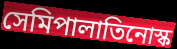
সেমিপালাতিনোস্ক